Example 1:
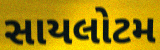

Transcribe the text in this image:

સાયલોટમ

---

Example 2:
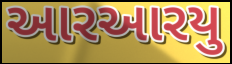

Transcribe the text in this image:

આરઆરયુ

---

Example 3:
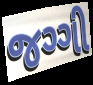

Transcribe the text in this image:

જગ્ગી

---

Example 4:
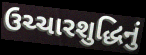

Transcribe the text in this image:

ઉચ્ચારશુદ્ધિનું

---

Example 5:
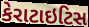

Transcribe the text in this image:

કેરાટાઇટિસ